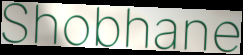
Shobhane